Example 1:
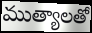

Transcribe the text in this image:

ముత్యాలతో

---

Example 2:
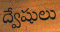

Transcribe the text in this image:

ద్వేషులు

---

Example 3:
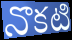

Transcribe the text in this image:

నొకటి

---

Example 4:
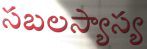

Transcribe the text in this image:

సబలస్యాస్య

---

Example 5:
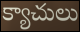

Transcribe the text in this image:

క్యాచులు